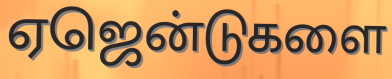
ஏஜென்டுகளை